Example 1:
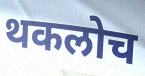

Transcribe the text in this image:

थकलोच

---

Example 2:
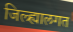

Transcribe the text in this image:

जिल्ह्यालगत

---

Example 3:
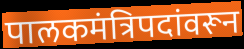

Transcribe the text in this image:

पालकमंत्रिपदांवरून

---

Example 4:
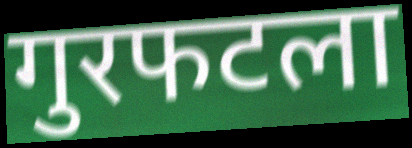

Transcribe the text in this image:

गुरफटला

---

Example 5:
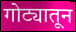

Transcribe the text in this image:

गोट्यातून